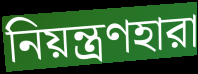
নিয়ন্ত্রণহারা